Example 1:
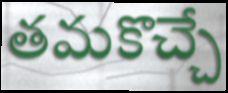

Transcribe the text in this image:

తమకొచ్చే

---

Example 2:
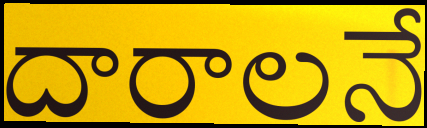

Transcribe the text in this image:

దారాలనే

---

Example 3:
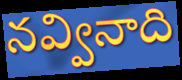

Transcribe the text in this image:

నవ్వినాది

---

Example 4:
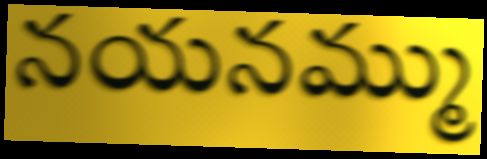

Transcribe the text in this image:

నయనమ్ము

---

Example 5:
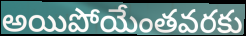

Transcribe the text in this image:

అయిపోయేంతవరకు